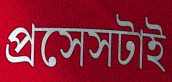
প্রসেসটাই